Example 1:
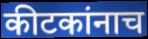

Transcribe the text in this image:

कीटकांनाच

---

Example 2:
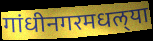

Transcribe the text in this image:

गांधीनगरमधल्या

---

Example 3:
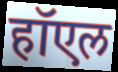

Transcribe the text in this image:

हॉएल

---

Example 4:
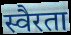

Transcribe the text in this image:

स्वैरता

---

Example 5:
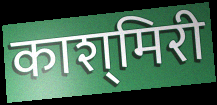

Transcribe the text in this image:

काश्मिरी